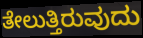
ತೇಲುತ್ತಿರುವುದು